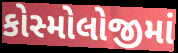
કોસ્મોલોજીમાં